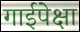
गाईपेक्षा